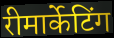
रीमार्केटिंग